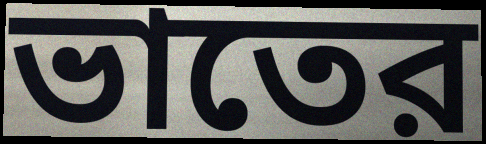
ভাতের